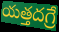
యత్తదగ్రే